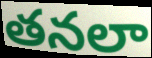
తనలా